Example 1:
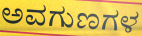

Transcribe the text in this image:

ಅವಗುಣಗಳ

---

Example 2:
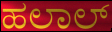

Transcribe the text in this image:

ಹಲಾಲ್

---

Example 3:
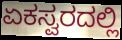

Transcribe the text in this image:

ಏಕಸ್ವರದಲ್ಲಿ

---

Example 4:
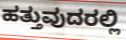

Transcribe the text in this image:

ಹತ್ತುವುದರಲ್ಲಿ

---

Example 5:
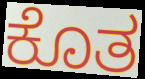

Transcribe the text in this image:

ಕೊತ